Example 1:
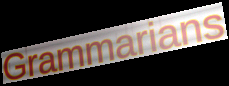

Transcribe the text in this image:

Grammarians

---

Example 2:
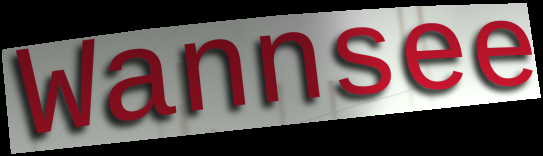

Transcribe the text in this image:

Wannsee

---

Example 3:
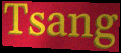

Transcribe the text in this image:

Tsang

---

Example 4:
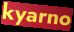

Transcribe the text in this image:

kyarno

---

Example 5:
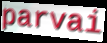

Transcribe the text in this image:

parvai